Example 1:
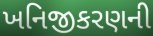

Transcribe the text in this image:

ખનિજીકરણની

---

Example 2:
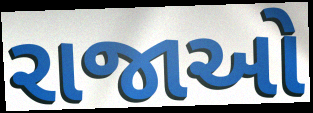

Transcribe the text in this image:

રાજાઓ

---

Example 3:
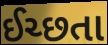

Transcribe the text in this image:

ઈચ્છતા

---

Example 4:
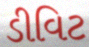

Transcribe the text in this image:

ડીવિટ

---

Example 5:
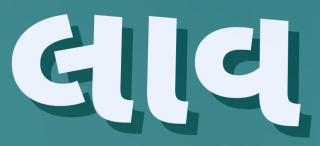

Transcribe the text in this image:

લાવ